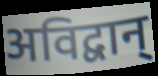
अविद्वान्